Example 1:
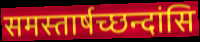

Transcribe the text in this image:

समस्तार्षच्छन्दांसि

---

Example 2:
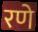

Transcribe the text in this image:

रणे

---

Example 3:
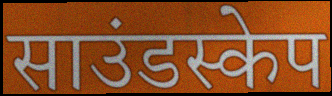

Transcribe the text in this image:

साउंडस्केप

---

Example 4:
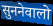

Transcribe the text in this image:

सुननेवालो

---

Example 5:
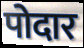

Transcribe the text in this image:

पोदार